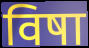
विषा